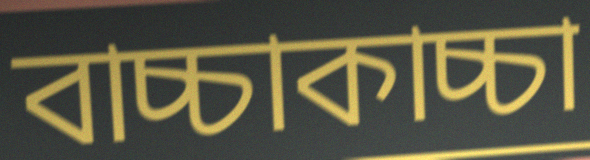
বাচ্চাকাচ্চা